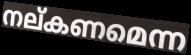
നല്കണമെന്ന